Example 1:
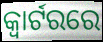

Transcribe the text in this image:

କ୍ୱାର୍ଟରରେ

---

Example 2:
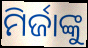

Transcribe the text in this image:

ମିର୍ଜାଙ୍କୁ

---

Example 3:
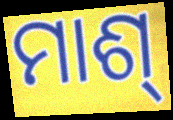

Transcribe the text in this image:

ମାଶ୍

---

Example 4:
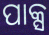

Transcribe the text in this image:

ପାକ୍ସ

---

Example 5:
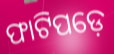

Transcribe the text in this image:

ଫାଟିପଡ଼େ